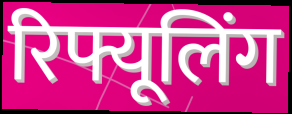
रिफ्यूलिंग